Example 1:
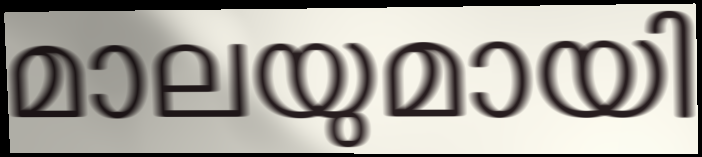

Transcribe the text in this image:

മാലയുമായി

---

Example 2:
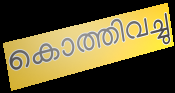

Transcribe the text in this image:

കൊത്തിവച്ചു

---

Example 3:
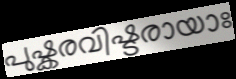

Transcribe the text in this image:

പുഷ്കരവിഷ്ടരായാഃ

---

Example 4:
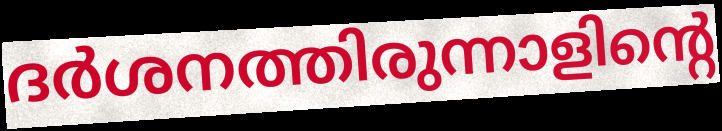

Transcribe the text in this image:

ദർശനത്തിരുന്നാളിന്റെ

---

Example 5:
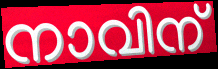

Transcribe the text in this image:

നാവിന്